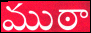
ముఠా